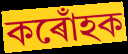
কৰোঁহক